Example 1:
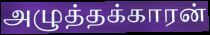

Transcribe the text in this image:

அழுத்தக்காரன்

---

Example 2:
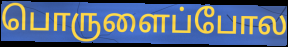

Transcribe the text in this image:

பொருளைப்போல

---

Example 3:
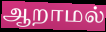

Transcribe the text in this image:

ஆறாமல்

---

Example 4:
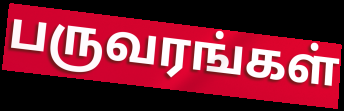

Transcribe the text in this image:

பருவரங்கள்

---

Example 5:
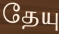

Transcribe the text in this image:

தேயு